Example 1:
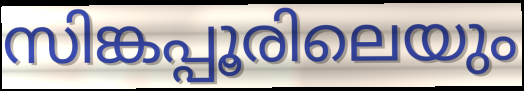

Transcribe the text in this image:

സിങ്കപ്പൂരിലെയും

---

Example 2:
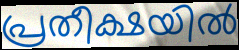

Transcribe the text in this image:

പ്രതീക്ഷയിൽ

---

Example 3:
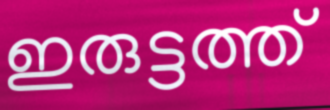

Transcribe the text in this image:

ഇരുട്ടത്ത്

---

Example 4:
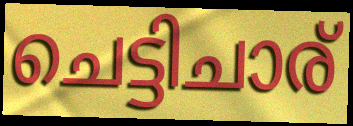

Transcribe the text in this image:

ചെട്ടിചാര്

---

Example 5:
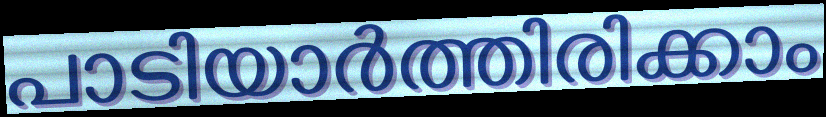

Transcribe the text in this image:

പാടിയാർത്തിരിക്കാം